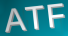
ATF